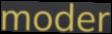
moder